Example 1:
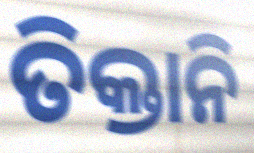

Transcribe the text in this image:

ତିକ୍ତାନି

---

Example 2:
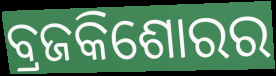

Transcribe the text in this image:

ବ୍ରଜକିଶୋରର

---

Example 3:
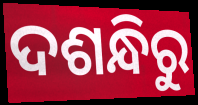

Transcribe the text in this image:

ଦଶନ୍ଧିରୁ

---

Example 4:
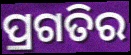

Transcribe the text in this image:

ପ୍ରଗତିର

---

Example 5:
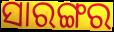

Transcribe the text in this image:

ସାରଙ୍ଗର